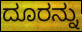
ದೂರನ್ನು